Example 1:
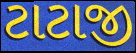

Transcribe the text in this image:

ટાટાજી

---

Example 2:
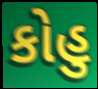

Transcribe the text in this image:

કોહુ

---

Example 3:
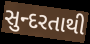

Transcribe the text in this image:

સુન્દરતાથી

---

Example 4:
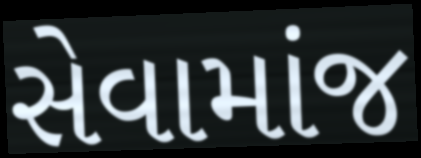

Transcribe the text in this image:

સેવામાંજ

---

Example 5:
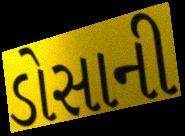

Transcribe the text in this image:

ડોસાની